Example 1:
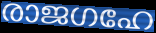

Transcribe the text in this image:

രാജഗഹേ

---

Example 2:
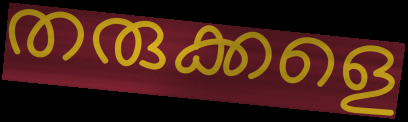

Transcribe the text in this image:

തരുക്കളെ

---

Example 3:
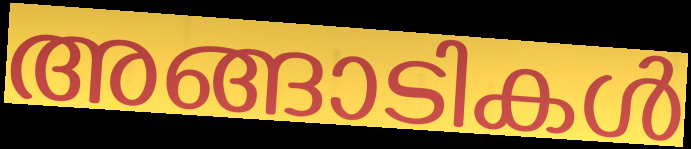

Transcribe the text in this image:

അങ്ങാടികൾ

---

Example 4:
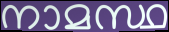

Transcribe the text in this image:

നാമസ്ഥ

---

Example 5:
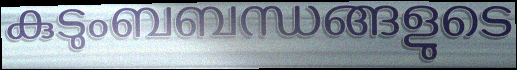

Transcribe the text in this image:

കുടുംബബന്ധങ്ങളുടെ